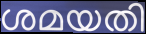
ശമയതി